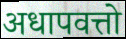
अधापवत्तो